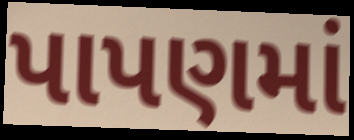
પાપણમાં